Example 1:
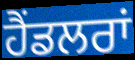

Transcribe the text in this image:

ਹੈਂਡਲਰਾਂ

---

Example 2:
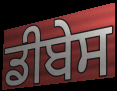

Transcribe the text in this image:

ਡੀਬੇਸ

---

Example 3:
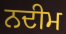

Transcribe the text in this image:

ਨਦੀਮ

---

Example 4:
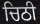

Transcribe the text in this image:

ਚਿਠੀ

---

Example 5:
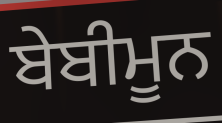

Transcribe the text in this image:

ਬੇਬੀਮੂਨ